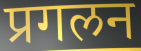
प्रगलन